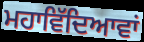
ਮਹਾਵਿੱਦਿਆਵਾਂ